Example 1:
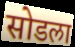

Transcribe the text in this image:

सोडला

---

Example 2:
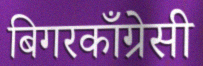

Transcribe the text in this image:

बिगरकाँग्रेसी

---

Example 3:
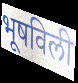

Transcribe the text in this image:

भूषविली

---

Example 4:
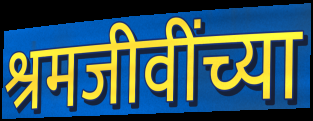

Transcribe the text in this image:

श्रमजीवींच्या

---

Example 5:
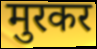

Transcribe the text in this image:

मुरकर